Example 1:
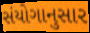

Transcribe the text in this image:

સંયોગાનુસાર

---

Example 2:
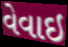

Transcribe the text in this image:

વેવાઇ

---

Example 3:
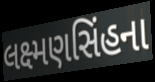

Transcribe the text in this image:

લક્ષ્મણસિંહના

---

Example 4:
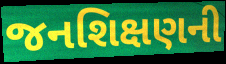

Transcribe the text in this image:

જનશિક્ષણની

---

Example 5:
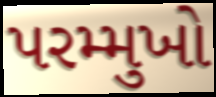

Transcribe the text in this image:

પરમ્મુખો